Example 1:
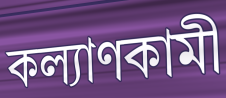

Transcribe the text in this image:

কল্যাণকামী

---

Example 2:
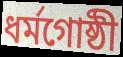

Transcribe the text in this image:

ধৰ্মগোষ্ঠী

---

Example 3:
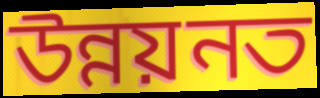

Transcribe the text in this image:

উন্নয়নত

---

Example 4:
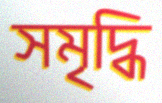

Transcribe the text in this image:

সমৃদ্ধি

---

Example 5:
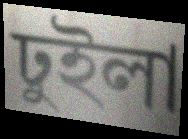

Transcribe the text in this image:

ঢুইলা